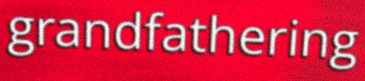
grandfathering